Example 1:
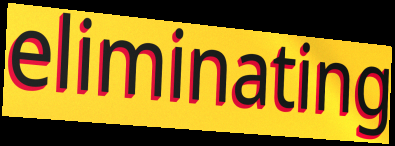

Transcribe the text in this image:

eliminating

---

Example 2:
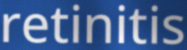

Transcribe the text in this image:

retinitis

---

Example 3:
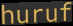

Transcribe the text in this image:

huruf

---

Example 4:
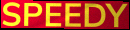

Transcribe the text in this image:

SPEEDY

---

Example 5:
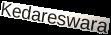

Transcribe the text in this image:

Kedareswara